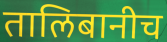
तालिबानीच